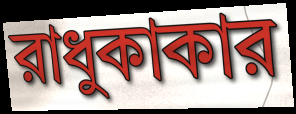
রাধুকাকার